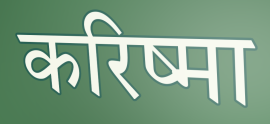
करिष्मा